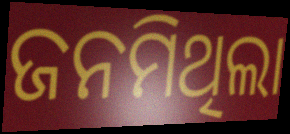
ଜନମିଥିଲା